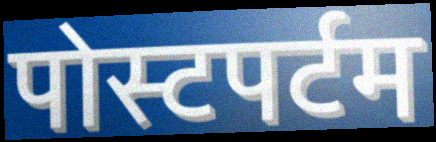
पोस्टपर्टम